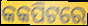
କକପିଟରେ